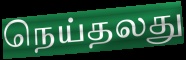
நெய்தலது